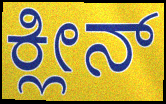
ಕ್ಲೀನ್